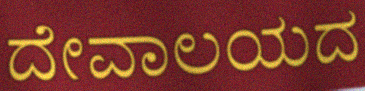
ದೇವಾಲಯದ